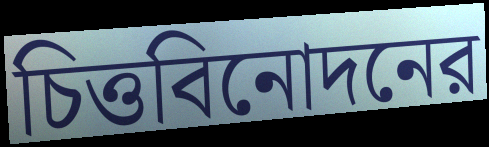
চিত্তবিনোদনের